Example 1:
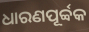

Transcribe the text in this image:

ଧାରଣପୂର୍ବ୍ବକ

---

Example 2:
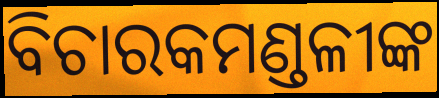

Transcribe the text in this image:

ବିଚାରକମଣ୍ଡଳୀଙ୍କ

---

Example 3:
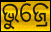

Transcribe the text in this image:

ଭୁଜ୍ରେ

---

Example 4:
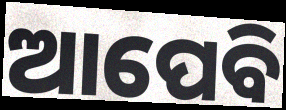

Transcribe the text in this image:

ଆପେବି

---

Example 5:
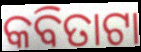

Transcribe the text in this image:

କବିତାଟା